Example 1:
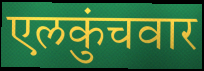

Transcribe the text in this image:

एलकुंचवार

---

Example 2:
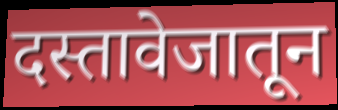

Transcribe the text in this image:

दस्तावेजातून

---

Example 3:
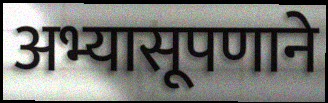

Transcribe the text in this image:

अभ्यासूपणाने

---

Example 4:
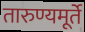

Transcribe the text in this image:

तारुण्यमूर्ते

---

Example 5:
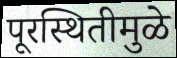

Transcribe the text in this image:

पूरस्थितीमुळे